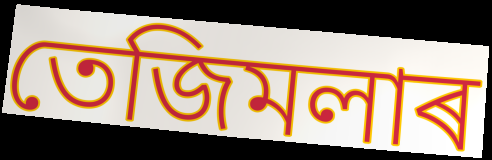
তেজিমলাৰ